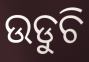
ଉଡୁଚି